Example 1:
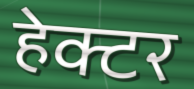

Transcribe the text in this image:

हेक्टर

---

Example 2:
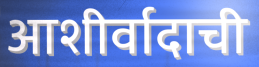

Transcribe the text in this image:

आशीर्वादाची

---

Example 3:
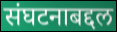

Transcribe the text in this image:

संघटनाबद्दल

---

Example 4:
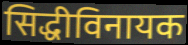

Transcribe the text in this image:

सिद्धीविनायक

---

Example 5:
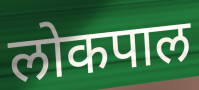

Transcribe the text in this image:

लोकपाल